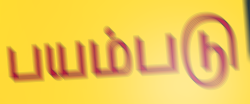
பயம்படு